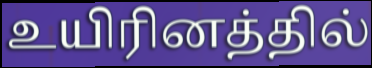
உயிரினத்தில்